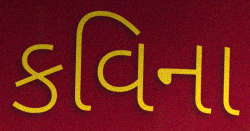
કવિના